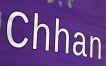
Chhan